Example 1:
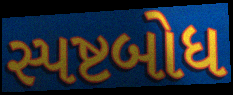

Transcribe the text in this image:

સ્પષ્ટબોધ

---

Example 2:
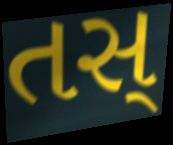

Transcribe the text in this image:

તસ્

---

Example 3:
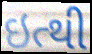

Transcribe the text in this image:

ઇત્થી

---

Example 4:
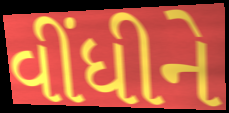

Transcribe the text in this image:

વીંધીને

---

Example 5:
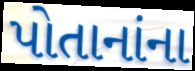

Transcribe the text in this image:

પોતાનાંના